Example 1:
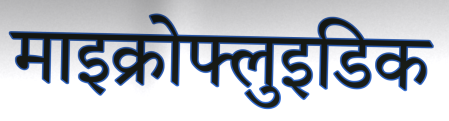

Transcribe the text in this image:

माइक्रोफ्लुइडिक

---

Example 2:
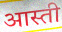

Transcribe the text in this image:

आस्ती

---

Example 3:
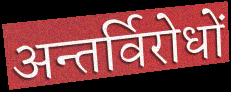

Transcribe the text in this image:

अन्तर्विरोधों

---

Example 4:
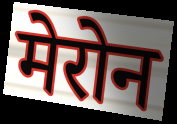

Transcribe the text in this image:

मेरोन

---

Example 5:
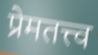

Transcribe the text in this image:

प्रेमतत्त्व